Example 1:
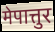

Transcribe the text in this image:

मेपात्तुर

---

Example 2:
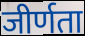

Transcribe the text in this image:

जीर्णता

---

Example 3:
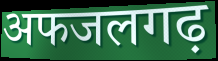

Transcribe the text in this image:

अफजलगढ़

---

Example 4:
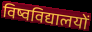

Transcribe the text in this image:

विष्वविद्यालयों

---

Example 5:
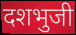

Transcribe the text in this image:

दशभुजी